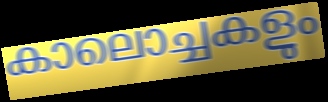
കാലൊച്ചകളും